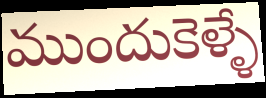
ముందుకెళ్ళే